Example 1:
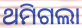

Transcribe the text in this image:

ଥମିଗଲା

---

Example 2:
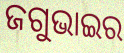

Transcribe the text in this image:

ଜଗୁଭାଇର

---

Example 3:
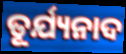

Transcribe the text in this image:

ତୂର୍ଯ୍ୟନାଦ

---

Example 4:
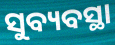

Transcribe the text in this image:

ସୁବ୍ୟବସ୍ଥା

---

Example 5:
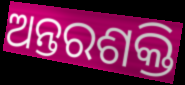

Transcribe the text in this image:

ଅନ୍ତରଶକ୍ତି